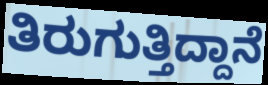
ತಿರುಗುತ್ತಿದ್ದಾನೆ